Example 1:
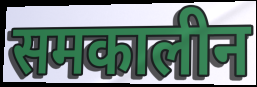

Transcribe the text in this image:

समकालीन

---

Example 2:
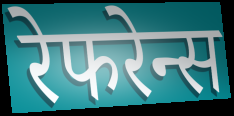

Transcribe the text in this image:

रेफरेन्स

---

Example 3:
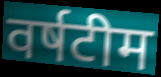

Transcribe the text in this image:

वर्षटीम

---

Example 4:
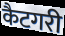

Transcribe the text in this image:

कैटगरी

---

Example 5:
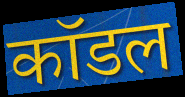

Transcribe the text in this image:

कॉडल